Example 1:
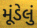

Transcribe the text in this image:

મૂંડેલું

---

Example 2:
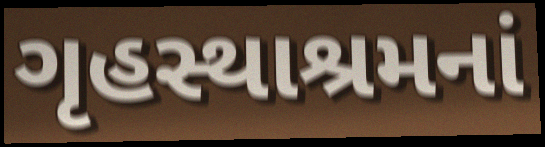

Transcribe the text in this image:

ગૃહસ્થાશ્રમનાં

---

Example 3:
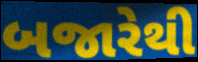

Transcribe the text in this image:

બજારેથી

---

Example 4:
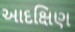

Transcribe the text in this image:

આદક્ષિણ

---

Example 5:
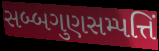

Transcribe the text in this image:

સબ્બગુણસમ્પત્તિં